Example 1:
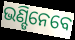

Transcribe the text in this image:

ଭଣ୍ଡିନେବେ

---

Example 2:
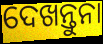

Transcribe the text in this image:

ଦେଖନ୍ତୁନା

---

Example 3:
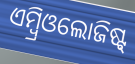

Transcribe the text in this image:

ଏମ୍ବ୍ରିଓଲୋଜିଷ୍ଟ୍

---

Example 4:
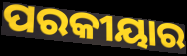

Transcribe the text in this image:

ପରକୀୟାର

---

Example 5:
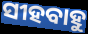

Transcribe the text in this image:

ସୀହବାହୁ